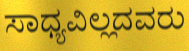
ಸಾಧ್ಯವಿಲ್ಲದವರು